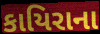
કાયિરાના